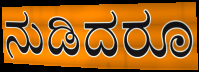
ನುಡಿದರೂ